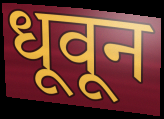
धूवून